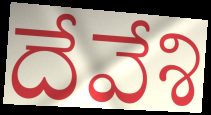
దేవేశి